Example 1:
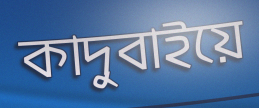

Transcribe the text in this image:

কাদুবাইয়ে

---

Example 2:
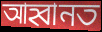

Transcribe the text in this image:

আহ্বানত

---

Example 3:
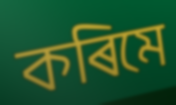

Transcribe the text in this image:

কৰিমে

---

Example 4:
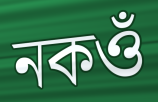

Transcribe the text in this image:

নকওঁ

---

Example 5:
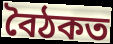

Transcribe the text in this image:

বৈঠকত